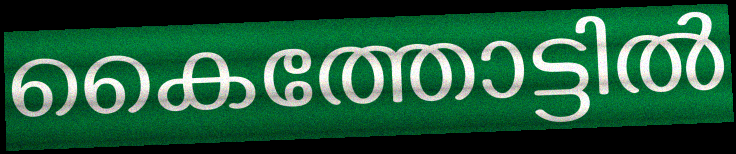
കൈത്തോട്ടിൽ